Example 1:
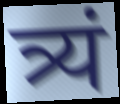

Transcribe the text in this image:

त्र्यं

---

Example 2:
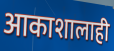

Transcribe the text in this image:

आकाशालाही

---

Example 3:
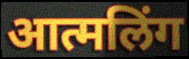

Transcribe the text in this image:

आत्मलिंग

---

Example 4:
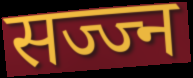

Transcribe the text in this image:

सज्ज्न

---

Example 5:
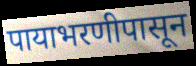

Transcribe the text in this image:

पायाभरणीपासून